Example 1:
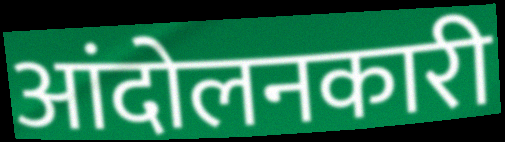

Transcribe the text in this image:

आंदोलनकारी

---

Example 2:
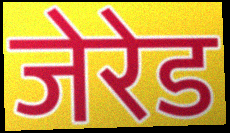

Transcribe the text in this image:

जेरेड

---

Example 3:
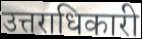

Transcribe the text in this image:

उत्तराधिकारी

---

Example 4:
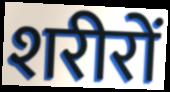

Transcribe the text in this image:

शरीरों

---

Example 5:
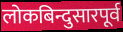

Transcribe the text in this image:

लोकबिन्दुसारपूर्व